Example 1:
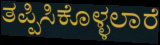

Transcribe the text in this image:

ತಪ್ಪಿಸಿಕೊಳ್ಳಲಾರೆ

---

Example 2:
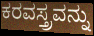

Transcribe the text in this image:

ಕರವಸ್ತ್ರವನ್ನು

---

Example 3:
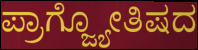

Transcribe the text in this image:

ಪ್ರಾಗ್ಜ್ಯೋತಿಷದ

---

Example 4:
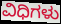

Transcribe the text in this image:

ವಿಧಿಗಳು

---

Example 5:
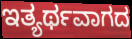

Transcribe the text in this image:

ಇತ್ಯರ್ಥವಾಗದ